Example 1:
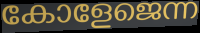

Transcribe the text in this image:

കോളേജെന്ന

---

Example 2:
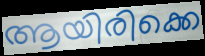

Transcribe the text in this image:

ആയിരിക്കെ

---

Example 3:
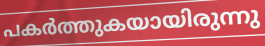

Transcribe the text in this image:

പകർത്തുകയായിരുന്നു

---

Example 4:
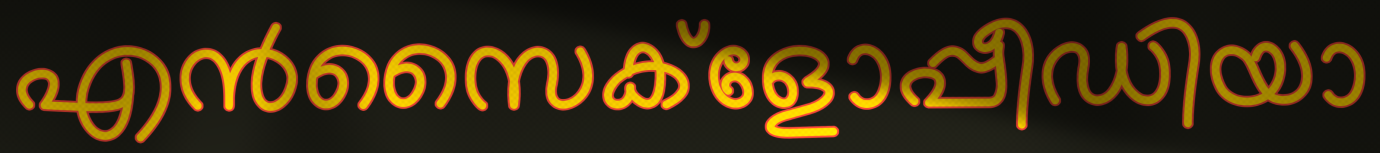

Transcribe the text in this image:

എൻസൈക്ളോപ്പീഡിയാ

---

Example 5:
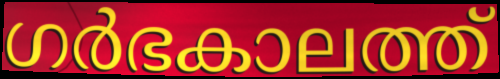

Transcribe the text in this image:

ഗർഭകാലത്ത്